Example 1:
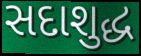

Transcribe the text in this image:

સદાશુદ્ધ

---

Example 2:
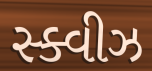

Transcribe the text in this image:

સ્ક્વીઝ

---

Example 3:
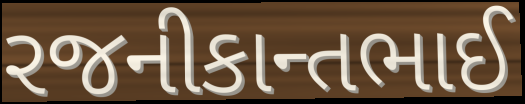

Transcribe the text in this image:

રજનીકાન્તભાઈ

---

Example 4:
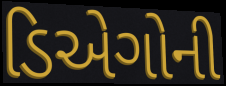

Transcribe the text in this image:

ડિએગોની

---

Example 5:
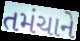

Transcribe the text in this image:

તમંચાને